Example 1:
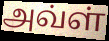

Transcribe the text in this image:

அவ்ள்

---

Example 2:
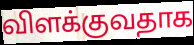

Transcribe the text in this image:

விளக்குவதாக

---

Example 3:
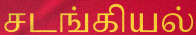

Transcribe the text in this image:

சடங்கியல்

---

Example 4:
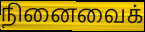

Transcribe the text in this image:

நினைவைக்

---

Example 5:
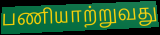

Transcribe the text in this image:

பணியாற்றுவது